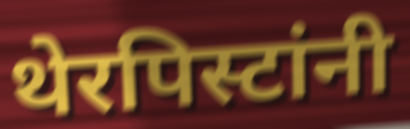
थेरपिस्टांनी